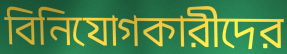
বিনিযোগকারীদের